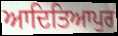
ਆਦਿਤਿਆਪੁਰ